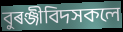
বুৰঞ্জীবিদসকলে